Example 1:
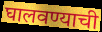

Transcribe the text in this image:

घालवण्याची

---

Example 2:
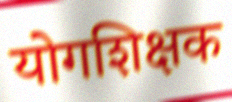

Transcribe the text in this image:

योगशिक्षक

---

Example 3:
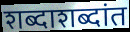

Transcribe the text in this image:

शब्दाशब्दांत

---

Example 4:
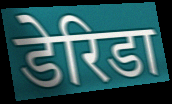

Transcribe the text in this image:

डेरिडा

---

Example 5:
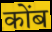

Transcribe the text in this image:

कोंब